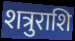
शत्रुराशि